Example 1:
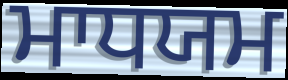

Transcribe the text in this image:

ਮਾਧਯਮ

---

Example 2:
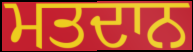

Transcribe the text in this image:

ਮਤਦਾਨ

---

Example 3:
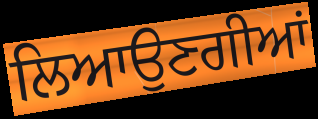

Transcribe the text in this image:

ਲਿਆਉਣਗੀਆਂ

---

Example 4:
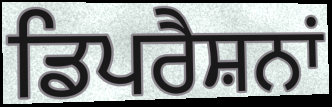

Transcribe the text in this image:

ਡਿਪਰੈਸ਼ਨਾਂ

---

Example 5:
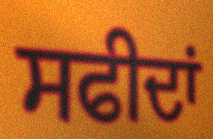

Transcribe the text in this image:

ਸਫੀਦਾਂ